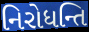
નિરોધન્તિ